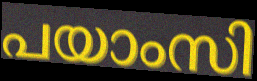
പയാംസി